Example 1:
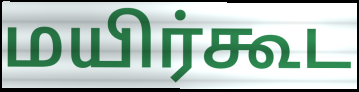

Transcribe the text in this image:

மயிர்கூட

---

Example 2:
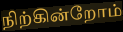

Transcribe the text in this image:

நிற்கின்றோம்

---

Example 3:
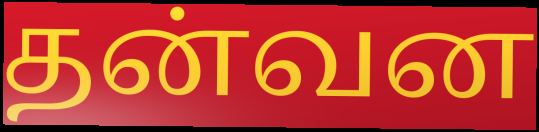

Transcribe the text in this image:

தன்வன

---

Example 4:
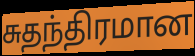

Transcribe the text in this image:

சுதந்திரமான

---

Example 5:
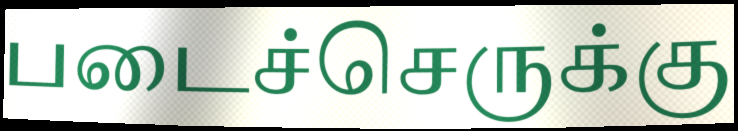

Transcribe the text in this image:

படைச்செருக்கு